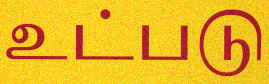
உட்படு